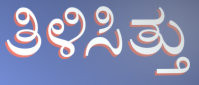
ತಿಳಿಸಿತ್ತು